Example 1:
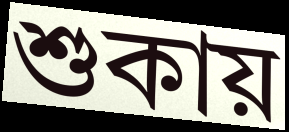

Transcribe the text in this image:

শুকায়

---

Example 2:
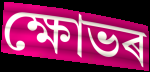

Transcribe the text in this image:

ক্ষোভৰ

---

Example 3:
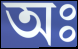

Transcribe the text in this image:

অঃ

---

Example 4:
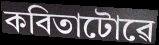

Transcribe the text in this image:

কবিতাটোৱে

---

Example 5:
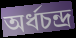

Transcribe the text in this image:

অৰ্ধচন্দ্ৰ